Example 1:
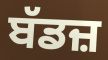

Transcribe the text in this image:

ਬੱਡਜ਼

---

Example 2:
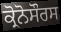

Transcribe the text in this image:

ਕ੍ਰੋਨੋਸੌਰਸ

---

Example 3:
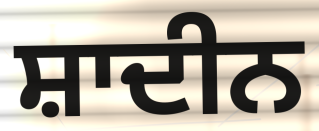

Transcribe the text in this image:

ਸ਼ਾਦੀਨ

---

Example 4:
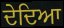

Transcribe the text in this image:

ਦੇਦਿਆ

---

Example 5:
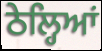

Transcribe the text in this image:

ਠੇਲ੍ਹਿਆਂ